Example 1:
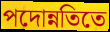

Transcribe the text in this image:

পদোন্নতিতে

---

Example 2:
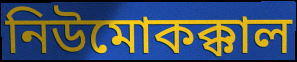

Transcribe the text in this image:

নিউমোকক্কাল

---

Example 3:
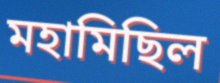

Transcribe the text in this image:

মহামিছিল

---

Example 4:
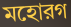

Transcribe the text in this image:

মহোরগ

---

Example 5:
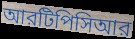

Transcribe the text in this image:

আরটিপিসিআর